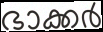
ഭാക്കർ